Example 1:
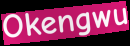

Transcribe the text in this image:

Okengwu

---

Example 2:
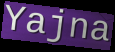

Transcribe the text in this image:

Yajna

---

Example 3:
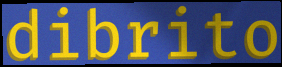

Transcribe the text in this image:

dibrito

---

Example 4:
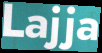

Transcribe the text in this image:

Lajja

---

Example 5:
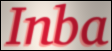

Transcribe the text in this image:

Inba